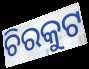
ଚିରକୁଟ